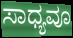
ಸಾಧ್ಯವೂ